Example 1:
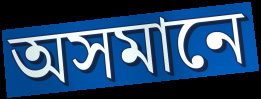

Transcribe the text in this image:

অসমানে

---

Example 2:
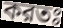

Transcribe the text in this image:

করতঃ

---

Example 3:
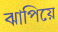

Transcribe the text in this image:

ঝাপিয়ে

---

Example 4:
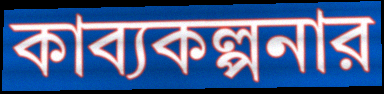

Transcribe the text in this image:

কাব্যকল্পনার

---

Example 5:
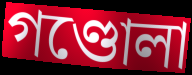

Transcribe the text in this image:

গণ্ডোলা